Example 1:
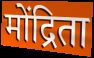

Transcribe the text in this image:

मोंद्रिता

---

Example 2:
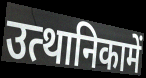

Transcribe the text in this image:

उत्थानिकामें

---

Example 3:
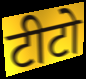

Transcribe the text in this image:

टीटो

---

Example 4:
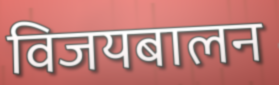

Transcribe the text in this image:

विजयबालन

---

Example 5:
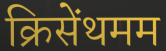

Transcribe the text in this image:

क्रिसेंथमम